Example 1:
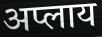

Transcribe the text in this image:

अप्लाय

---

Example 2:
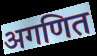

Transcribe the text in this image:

अगणित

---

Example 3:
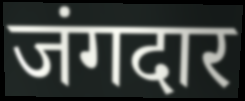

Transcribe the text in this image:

जंगदार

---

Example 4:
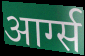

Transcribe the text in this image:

आर्ग्स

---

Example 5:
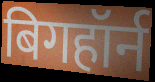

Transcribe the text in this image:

बिगहॉर्न